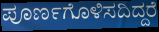
ಪೂರ್ಣಗೊಳಿಸದಿದ್ದರೆ